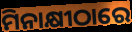
ମିନାକ୍ଷୀଠାରେ